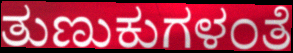
ತುಣುಕುಗಳಂತೆ